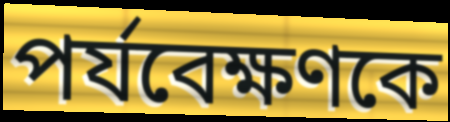
পর্যবেক্ষণকে